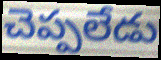
చెప్పలేడు